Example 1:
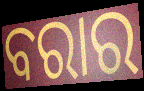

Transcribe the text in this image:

ବରାର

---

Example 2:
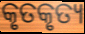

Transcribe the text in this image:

କୃତକୃତ୍ୟ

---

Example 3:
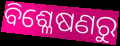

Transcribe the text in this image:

ବିଶ୍ଳେଷଣରୁ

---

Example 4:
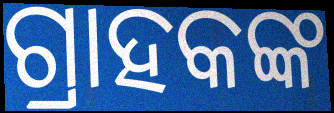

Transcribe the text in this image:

ଗ୍ରାହକଙ୍କ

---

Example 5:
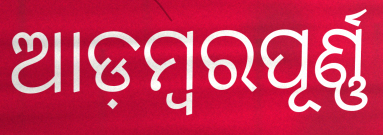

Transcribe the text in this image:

ଆଡ଼ମ୍ବରପୂର୍ଣ୍ଣ